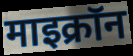
माइक्रॉन